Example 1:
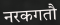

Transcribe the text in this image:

नरकगतौ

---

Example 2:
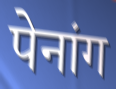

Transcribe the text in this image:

पेनांग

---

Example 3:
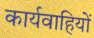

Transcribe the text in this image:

कार्यवाहियों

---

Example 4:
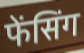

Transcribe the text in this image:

फेंसिंग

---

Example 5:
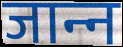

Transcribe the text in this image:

जान्न